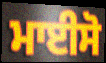
ਮਾਈਸੋ